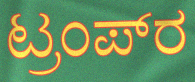
ಟ್ರಂಪ್‍ರ